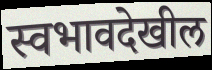
स्वभावदेखील